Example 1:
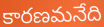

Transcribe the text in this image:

కారణమనేది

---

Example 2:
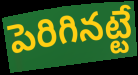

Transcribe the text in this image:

పెరిగినట్టే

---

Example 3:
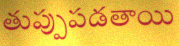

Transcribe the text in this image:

తుప్పుపడతాయి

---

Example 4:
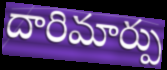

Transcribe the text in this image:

దారిమార్పు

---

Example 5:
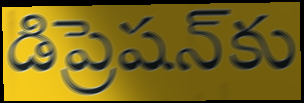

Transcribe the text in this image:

డిప్రెషన్‌కు